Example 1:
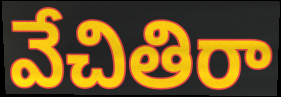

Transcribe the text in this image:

వేచితిరా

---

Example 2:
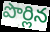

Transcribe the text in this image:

పొర్లిన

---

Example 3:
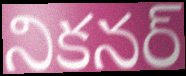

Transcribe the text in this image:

నికనర్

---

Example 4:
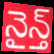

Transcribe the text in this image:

నైన్త్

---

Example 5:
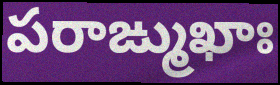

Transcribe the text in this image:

పరాఙ్ముఖాః